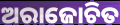
ଅରାଜୋଚିତ